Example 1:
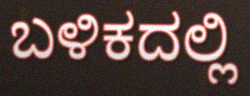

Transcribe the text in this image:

ಬಳಿಕದಲ್ಲಿ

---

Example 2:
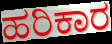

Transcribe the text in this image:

ಹರಿಕಾರ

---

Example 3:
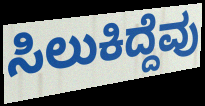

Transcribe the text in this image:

ಸಿಲುಕಿದ್ದೆವು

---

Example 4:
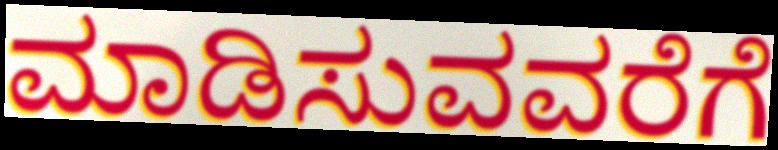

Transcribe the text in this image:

ಮಾಡಿಸುವವರೆಗೆ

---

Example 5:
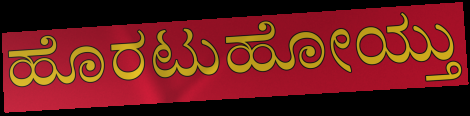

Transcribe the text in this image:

ಹೊರಟುಹೋಯ್ತು